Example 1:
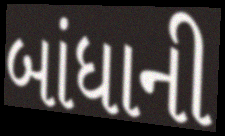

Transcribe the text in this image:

બાંધાની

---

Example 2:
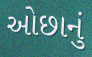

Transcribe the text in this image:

ઓછાનું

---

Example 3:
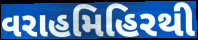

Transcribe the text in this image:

વરાહમિહિરથી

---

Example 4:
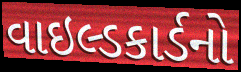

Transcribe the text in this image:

વાઇલ્ડકાર્ડનો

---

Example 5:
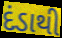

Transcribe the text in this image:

દંડાથી